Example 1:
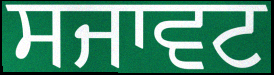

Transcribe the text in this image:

ਸਜਾਵਟ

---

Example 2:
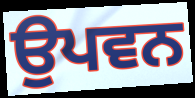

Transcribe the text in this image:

ਉਪਵਨ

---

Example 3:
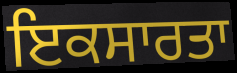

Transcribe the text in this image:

ਇਕਸਾਰਤਾ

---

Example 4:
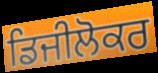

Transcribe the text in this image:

ਡਿਜੀਲੋਕਰ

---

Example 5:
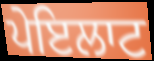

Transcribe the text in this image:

ਪੇਇਲਾਟ